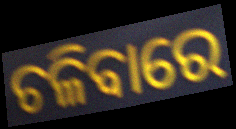
ଚଳିବାରେ